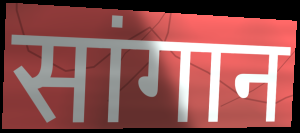
सांगान